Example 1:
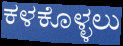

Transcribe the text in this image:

ಕಳಕೊಳ್ಳಲು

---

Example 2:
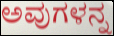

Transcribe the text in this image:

ಅವುಗಳನ್ನ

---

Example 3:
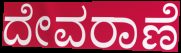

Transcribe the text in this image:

ದೇವರಾಣೆ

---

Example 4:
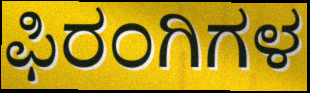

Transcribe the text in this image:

ಫಿರಂಗಿಗಳ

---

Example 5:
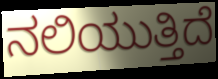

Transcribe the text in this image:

ನಲಿಯುತ್ತಿದೆ